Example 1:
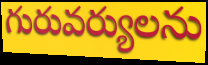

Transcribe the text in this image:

గురువర్యులను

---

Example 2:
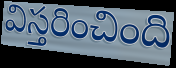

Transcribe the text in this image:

విస్తరించింది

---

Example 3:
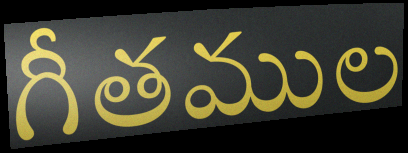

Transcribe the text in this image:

గీతముల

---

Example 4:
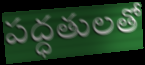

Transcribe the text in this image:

పద్ధతులతో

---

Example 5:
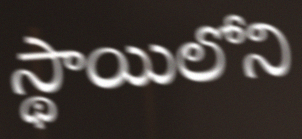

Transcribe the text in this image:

స్థాయిలోని